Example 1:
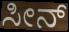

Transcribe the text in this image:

ಸೀನ್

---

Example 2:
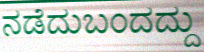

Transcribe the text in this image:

ನಡೆದುಬಂದದ್ದು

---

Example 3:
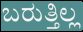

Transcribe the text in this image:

ಬರುತ್ತಿಲ್ಲ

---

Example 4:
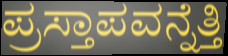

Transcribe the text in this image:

ಪ್ರಸ್ತಾಪವನ್ನೆತ್ತಿ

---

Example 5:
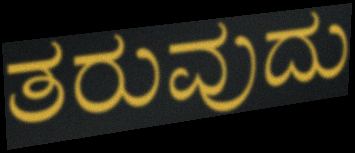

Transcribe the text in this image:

ತರುವುದು